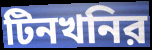
টিনখনির